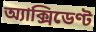
অ্যাক্সিডেণ্ট